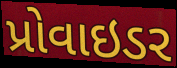
પ્રોવાઇડર